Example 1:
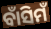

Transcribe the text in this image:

ବାଁସିମଁ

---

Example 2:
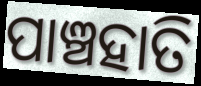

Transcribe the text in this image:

ପାଞ୍ଚହାତି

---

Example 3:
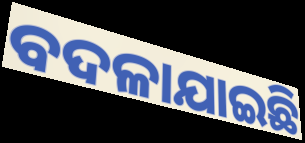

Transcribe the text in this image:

ବଦଳାଯାଇଛି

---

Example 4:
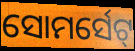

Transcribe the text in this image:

ସୋମର୍ସେଟ୍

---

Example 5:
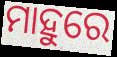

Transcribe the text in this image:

ମାହୁରେ